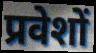
प्रवेशों